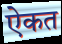
ऐकत